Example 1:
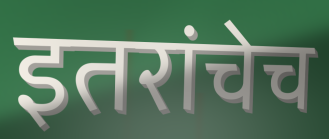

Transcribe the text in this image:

इतरांचेच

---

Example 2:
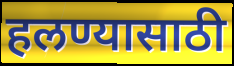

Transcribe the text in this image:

हलण्यासाठी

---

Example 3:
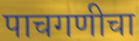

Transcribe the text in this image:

पाचगणीचा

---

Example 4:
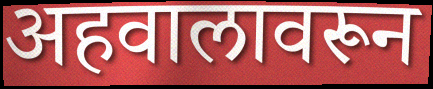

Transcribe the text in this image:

अहवालावरून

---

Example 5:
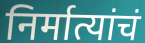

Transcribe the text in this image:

निर्मात्यांचं